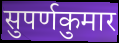
सुपर्णकुमार